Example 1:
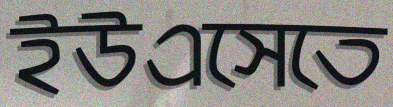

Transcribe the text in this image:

ইউএসেতে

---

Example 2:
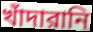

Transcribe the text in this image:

খাঁদারানি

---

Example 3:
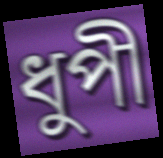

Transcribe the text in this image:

ধুপী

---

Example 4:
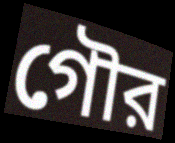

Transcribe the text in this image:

গৌর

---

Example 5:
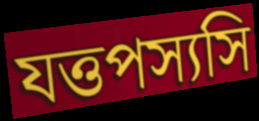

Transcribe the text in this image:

যত্তপস্যসি